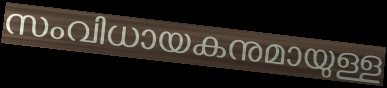
സംവിധായകനുമായുള്ള